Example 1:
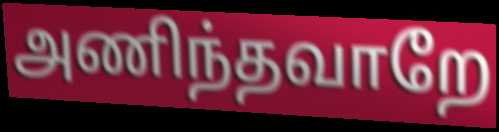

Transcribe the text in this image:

அணிந்தவாறே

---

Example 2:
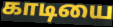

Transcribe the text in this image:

காடியை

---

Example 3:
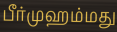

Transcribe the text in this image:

பீர்முஹம்மது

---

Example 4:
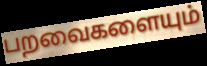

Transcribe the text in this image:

பறவைகளையும்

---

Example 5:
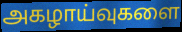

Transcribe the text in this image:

அகழாய்வுகளை